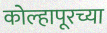
कोल्हापूरच्या